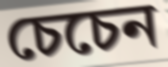
চেচেন